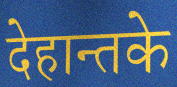
देहान्तके